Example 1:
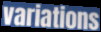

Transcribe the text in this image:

variations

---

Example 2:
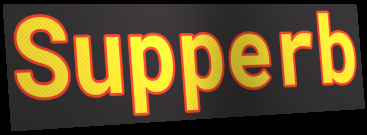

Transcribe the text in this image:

Supperb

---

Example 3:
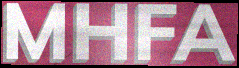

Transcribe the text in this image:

MHFA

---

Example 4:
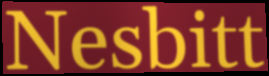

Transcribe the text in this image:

Nesbitt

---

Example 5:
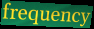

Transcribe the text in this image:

frequency